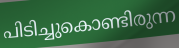
പിടിച്ചുകൊണ്ടിരുന്ന